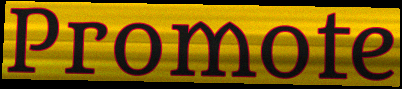
Promote